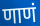
णाणं